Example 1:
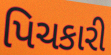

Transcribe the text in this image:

પિચકારી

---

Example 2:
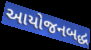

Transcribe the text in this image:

આયોજનબદ્ધ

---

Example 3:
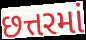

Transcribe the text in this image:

છત્તરમાં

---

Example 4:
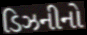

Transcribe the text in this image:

ડિઝનીનો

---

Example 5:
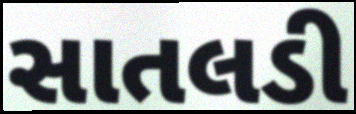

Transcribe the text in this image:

સાતલડી